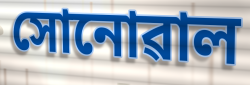
সোনোৱাল